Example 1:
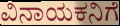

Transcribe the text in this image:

ವಿನಾಯಕನಿಗೆ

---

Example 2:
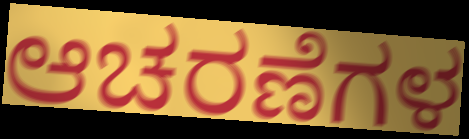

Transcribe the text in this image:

ಆಚರಣೆಗಳ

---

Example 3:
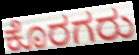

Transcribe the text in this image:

ಕೊರಗರು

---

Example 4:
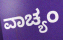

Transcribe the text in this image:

ವಾಚ್ಯಂ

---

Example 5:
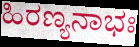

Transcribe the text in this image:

ಹಿರಣ್ಯನಾಭಃ